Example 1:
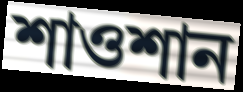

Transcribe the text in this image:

শাওশান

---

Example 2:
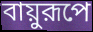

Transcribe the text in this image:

বায়ুরূপে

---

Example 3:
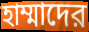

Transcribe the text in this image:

হাম্মাদের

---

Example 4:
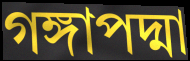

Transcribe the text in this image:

গঙ্গাপদ্মা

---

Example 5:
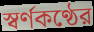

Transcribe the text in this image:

স্বর্ণকণ্ঠের